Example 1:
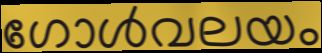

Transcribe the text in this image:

ഗോൾവലയം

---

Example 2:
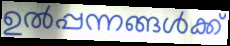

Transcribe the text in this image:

ഉൽപ്പന്നങ്ങൾക്ക്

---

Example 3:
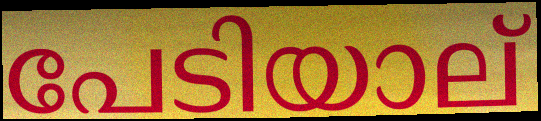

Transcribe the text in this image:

പേടിയാല്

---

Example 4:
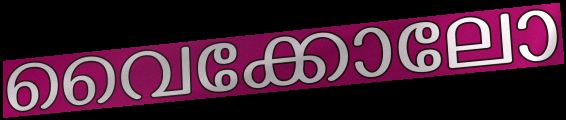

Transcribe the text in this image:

വൈക്കോലോ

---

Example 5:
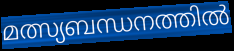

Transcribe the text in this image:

മത്സ്യബന്ധനത്തിൽ